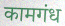
कामगंध